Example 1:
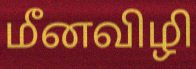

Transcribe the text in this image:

மீனவிழி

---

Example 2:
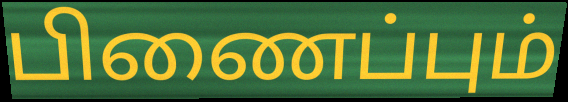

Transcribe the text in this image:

பிணைப்பும்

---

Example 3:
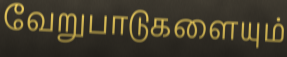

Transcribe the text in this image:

வேறுபாடுகளையும்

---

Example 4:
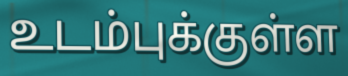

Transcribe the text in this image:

உடம்புக்குள்ள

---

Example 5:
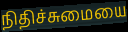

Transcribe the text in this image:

நிதிச்சுமையை